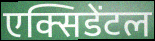
एक्सिडेंटल